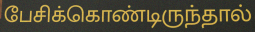
பேசிக்கொண்டிருந்தால்